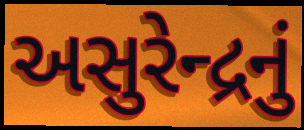
અસુરેન્દ્રનું